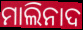
ମାଲିନାଦ